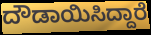
ದೌಡಾಯಿಸಿದ್ದಾರೆ